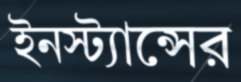
ইনস্ট্যান্সের